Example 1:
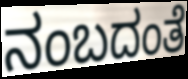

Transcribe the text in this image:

ನಂಬದಂತೆ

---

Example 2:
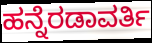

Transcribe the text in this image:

ಹನ್ನೆರಡಾವರ್ತಿ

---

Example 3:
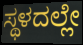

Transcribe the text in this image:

ಸ್ಥಳದಲ್ಲೇ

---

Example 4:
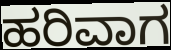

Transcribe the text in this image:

ಹರಿವಾಗ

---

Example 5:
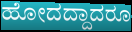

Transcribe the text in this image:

ಹೋದದ್ದಾದರೂ